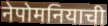
नेपोमनियाची